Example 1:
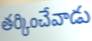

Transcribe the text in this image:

తర్కించేవాడు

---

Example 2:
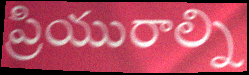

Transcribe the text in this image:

ప్రియురాల్ని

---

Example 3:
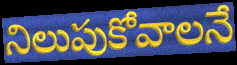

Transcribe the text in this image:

నిలుపుకోవాలనే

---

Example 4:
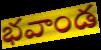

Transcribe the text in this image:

భవాండ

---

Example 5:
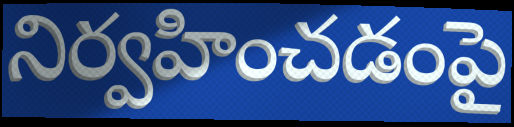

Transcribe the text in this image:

నిర్వహించడంపై